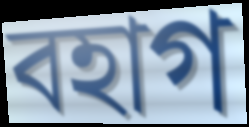
বহাগ